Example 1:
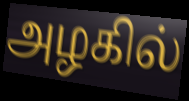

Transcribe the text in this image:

அழகில்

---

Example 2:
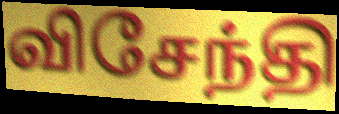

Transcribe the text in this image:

விசேந்தி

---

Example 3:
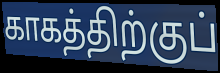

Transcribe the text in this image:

காகத்திற்குப்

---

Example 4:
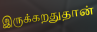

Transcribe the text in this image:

இருக்கறதுதான்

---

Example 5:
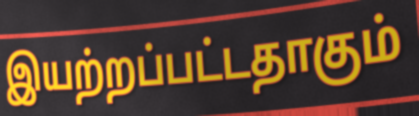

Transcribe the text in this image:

இயற்றப்பட்டதாகும்